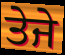
ਤੇਜੇ